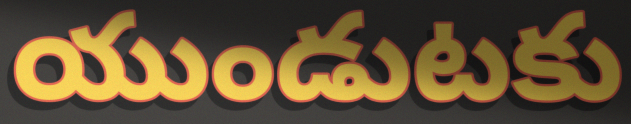
యుండుటకు